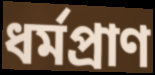
ধর্মপ্রাণ